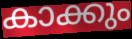
കാക്കും